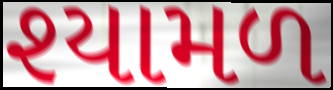
શ્યામળ